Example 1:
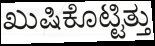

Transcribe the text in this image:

ಖುಷಿಕೊಟ್ಟಿತ್ತು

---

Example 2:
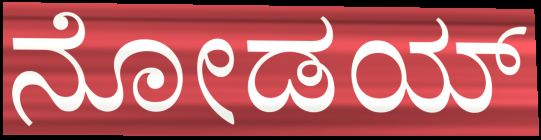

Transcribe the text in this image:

ನೋಡಯ್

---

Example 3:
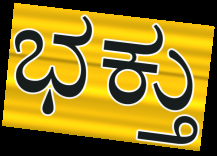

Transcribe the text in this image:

ಭಕ್ತು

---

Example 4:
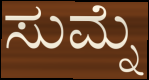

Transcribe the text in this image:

ಸುಮ್ನೆ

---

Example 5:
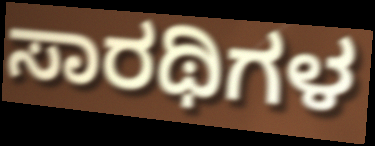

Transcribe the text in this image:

ಸಾರಥಿಗಳ